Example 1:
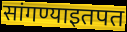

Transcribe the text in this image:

सांगण्याइतपत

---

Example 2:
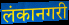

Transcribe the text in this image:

लंकानगरी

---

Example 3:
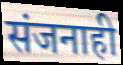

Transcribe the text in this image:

संजनाही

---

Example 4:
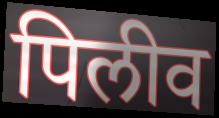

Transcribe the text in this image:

पिलीव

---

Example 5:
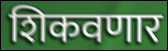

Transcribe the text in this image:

शिकवणार